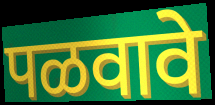
पळवावे